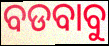
ବଡବାବୁ